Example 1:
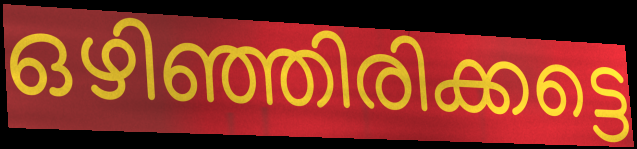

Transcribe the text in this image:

ഒഴിഞ്ഞിരിക്കട്ടെ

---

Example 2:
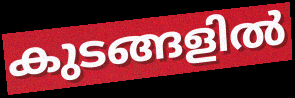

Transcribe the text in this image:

കുടങ്ങളിൽ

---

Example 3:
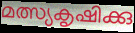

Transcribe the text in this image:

മത്സ്യകൃഷിക്കു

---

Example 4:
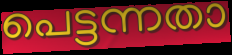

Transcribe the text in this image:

പെട്ടന്നതാ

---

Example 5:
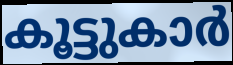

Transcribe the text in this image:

കൂട്ടുകാർ